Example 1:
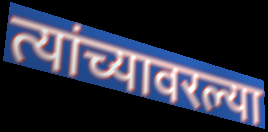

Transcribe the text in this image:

त्यांच्यावरल्या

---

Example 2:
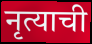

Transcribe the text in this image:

नृत्याची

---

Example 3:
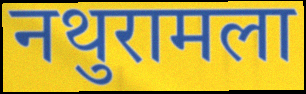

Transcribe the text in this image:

नथुरामला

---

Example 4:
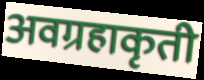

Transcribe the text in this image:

अवग्रहाकृती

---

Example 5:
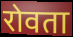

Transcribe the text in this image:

रोवता